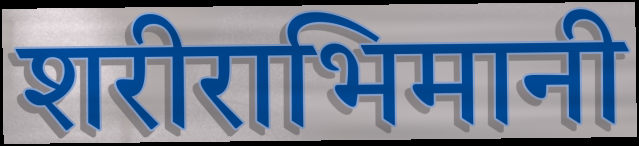
शरीराभिमानी